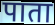
पाता